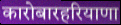
कारोबारहरियाणा